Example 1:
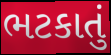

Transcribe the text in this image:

ભટકાતું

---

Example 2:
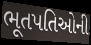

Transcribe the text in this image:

ભૂતપતિઓની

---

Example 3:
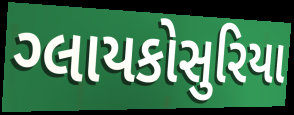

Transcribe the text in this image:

ગ્લાયકોસુરિયા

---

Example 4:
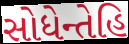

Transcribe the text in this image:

સોધેન્તેહિ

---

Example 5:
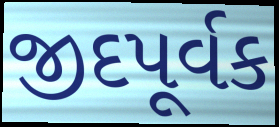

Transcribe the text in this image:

જીદપૂર્વક